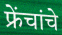
फ्रेंचांचे